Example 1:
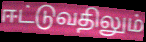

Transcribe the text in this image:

ஈட்டுவதிலும்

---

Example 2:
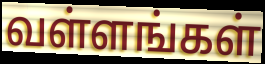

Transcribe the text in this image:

வள்ளங்கள்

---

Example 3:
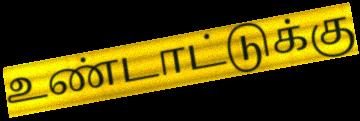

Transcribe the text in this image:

உண்டாட்டுக்கு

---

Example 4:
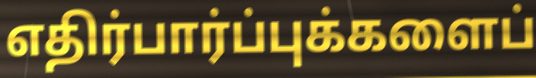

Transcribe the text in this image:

எதிர்பார்ப்புக்களைப்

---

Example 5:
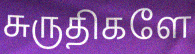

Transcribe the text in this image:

சுருதிகளே